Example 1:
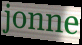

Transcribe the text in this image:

jonne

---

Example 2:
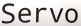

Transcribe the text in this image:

Servo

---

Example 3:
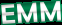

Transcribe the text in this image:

EMM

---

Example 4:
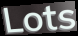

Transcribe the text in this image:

Lots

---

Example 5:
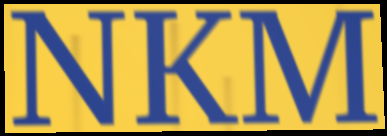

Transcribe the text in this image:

NKM